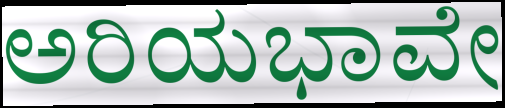
ಅರಿಯಭಾವೇ